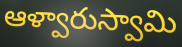
ఆళ్వారుస్వామి